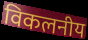
विकलनीय